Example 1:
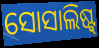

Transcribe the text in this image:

ସୋସାଲିଷ୍ଟ୍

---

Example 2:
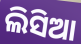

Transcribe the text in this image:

ଲିସିଆ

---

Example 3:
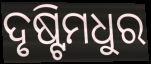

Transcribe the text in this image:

ଦୃଷ୍ଟିମଧୁର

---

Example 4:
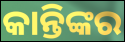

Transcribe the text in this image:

କାନ୍ତିଙ୍କର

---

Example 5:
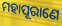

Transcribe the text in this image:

ମହାପୂରାଣେ